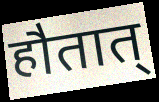
हौतात्